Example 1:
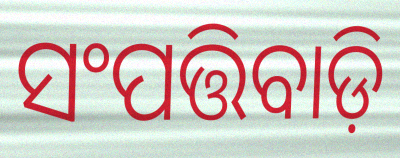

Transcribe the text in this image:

ସଂପତ୍ତିବାଡ଼ି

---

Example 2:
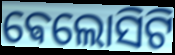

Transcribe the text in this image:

ଵେଲୋସିଟି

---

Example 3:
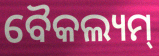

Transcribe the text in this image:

ବୈକଲ୍ୟମ୍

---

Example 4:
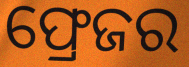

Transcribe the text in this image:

ଫ୍ରେଜର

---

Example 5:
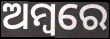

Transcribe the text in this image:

ଅମ୍ବରେ